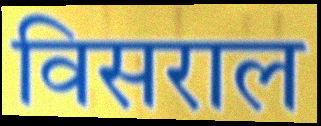
विसराल